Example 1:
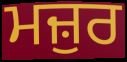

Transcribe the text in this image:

ਮਜ਼ੁਰ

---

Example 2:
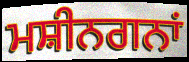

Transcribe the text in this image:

ਮਸ਼ੀਨਗਨਾਂ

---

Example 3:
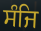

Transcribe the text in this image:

ਸੰਜਿ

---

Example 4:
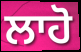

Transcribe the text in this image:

ਲਾਹੋ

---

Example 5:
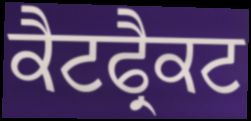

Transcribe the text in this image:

ਕੈਟਫ੍ਰੈਕਟ